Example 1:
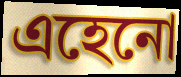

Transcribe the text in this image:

এহেনো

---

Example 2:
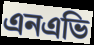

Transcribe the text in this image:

এনএভি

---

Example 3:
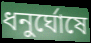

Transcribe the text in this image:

ধনুর্ঘোষে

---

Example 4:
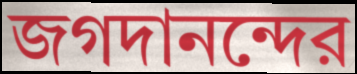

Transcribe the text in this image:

জগদানন্দের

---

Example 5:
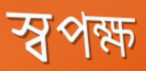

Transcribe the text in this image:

স্বপক্ষ